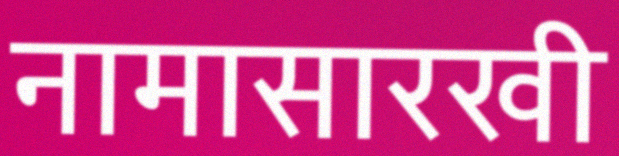
नामासारखी